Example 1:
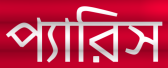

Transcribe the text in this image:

প্যারিস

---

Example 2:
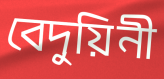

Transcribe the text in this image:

বেদুয়িনী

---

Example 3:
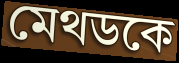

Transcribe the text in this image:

মেথডকে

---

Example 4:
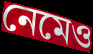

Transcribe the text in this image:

নেমেও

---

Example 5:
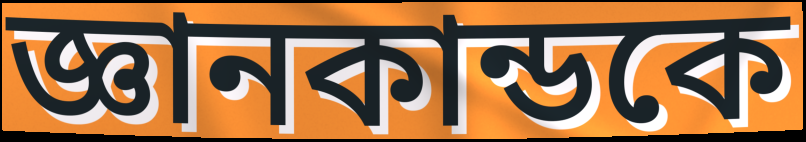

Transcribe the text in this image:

জ্ঞানকান্ডকে